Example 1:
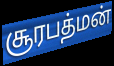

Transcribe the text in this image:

சூரபத்மன்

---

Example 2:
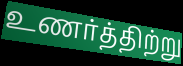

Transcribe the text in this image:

உணர்த்திற்று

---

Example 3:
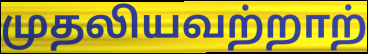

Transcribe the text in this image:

முதலியவற்றாற்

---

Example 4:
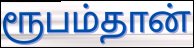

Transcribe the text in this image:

ரூபம்தான்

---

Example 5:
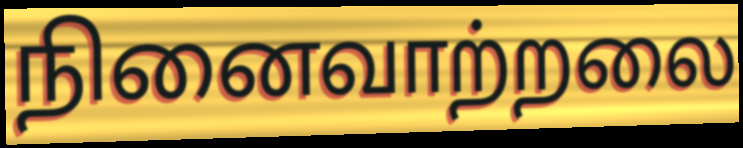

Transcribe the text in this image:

நினைவாற்றலை